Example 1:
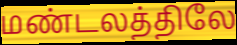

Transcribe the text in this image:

மண்டலத்திலே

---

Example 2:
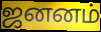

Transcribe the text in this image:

ஜனனம்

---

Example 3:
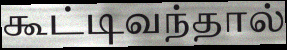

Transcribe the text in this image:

கூட்டிவந்தால்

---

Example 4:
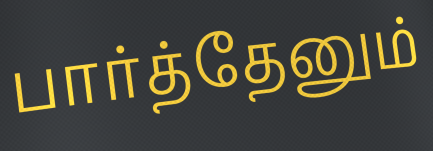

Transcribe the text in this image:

பார்த்தேனும்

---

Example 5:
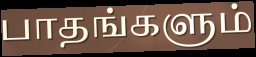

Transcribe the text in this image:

பாதங்களும்